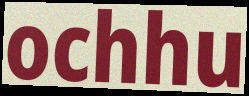
ochhu